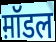
म़ॉडल